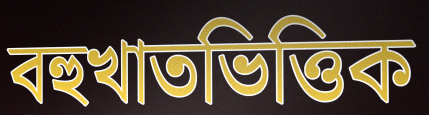
বহুখাতভিত্তিক